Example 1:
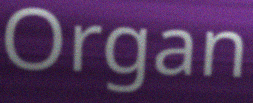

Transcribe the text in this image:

Organ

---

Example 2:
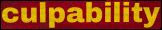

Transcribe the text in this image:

culpability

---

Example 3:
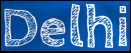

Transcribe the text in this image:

Delhi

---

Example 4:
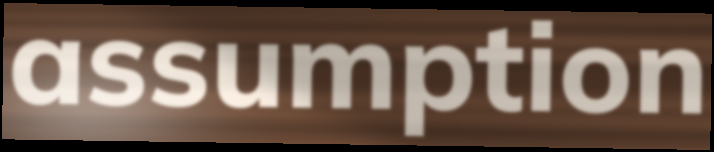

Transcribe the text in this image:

assumption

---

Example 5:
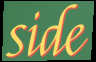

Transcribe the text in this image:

side